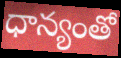
ధాన్యంతో